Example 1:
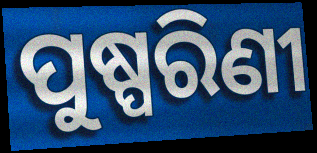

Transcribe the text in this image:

ପୁଷ୍ପରିଣୀ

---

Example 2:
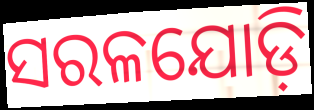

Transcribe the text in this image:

ସରଳଯୋଡ଼ି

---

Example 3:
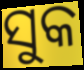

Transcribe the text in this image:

ସୁକ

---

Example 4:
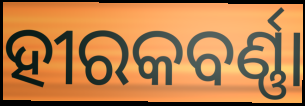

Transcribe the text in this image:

ହୀରକବର୍ଣ୍ଣା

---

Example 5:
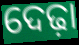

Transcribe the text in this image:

ଦେଢ଼ା